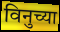
विनुच्या